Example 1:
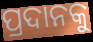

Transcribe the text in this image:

ପ୍ରଦାନକୁ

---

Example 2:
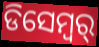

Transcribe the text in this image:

ଡିସେମ୍ବର୍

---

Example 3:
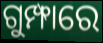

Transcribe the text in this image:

ଗୁମ୍ଫାରେ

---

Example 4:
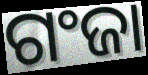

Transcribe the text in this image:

ଗଂଜା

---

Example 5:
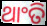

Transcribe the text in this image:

ଥାଂତି